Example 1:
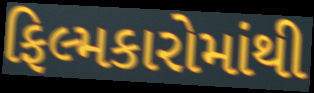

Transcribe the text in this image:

ફિલ્મકારોમાંથી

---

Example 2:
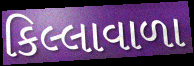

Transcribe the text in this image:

કિલ્લાવાળા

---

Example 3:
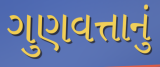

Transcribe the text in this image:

ગુણવત્તાનું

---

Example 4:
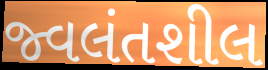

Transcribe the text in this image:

જ્વલંતશીલ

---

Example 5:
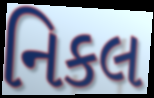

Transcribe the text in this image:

નિકલ